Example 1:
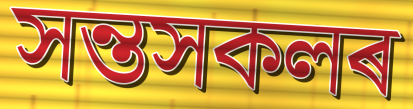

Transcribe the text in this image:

সন্তসকলৰ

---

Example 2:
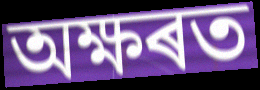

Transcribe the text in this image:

অক্ষৰত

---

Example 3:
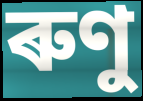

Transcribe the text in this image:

ৰুণু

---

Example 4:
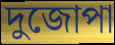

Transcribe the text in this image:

দুজোপা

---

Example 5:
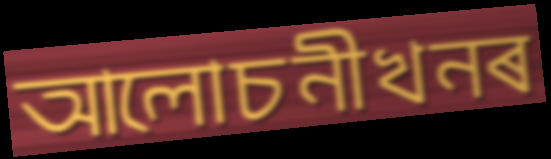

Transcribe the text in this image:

আলোচনীখনৰ